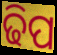
ଢିପ